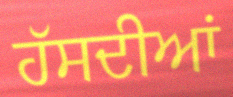
ਹੱਸਦੀਆਂ